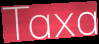
Taxa